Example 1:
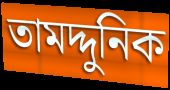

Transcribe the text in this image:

তামদ্দুনিক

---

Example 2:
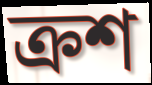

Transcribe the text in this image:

ক্রশ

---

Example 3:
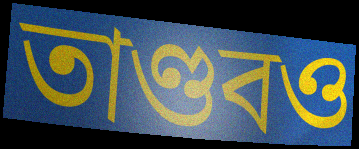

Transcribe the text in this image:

তাণ্ডবও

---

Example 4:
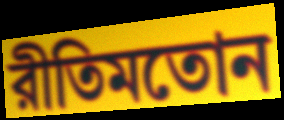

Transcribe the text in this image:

রীতিমতোন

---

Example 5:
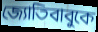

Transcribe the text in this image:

জ্যোতিবাবুকে